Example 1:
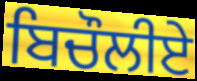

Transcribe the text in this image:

ਬਿਚੌਲੀਏ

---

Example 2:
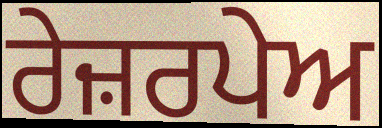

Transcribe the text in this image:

ਰੇਜ਼ਰਪੇਅ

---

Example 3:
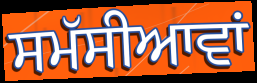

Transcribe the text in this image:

ਸਮੱਸੀਆਵਾਂ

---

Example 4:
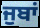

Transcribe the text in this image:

ਜੁਬਾਂ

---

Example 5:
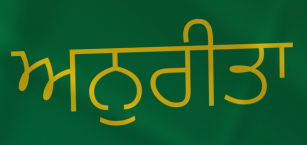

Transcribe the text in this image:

ਅਨੁਰੀਤਾ